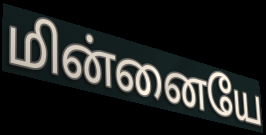
மின்னையே